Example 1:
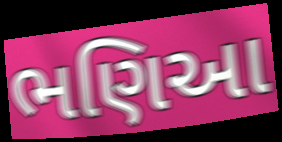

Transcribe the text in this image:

ભણિઆ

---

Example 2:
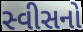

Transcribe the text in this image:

સ્વીસનો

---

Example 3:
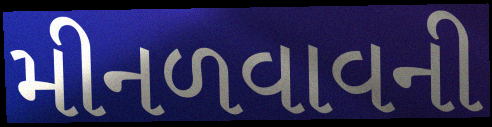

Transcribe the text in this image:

મીનળવાવની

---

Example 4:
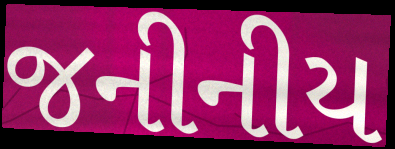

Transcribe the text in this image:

જનીનીય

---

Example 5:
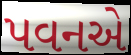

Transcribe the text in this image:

પવનએ